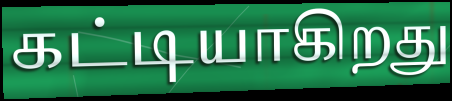
கட்டியாகிறது